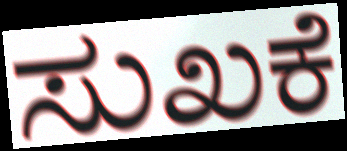
ಸುಖಕೆ